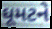
ઘૂમટને